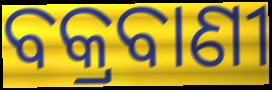
ବକ୍ରବାଣୀ